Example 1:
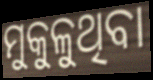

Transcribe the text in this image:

ମୁକୁଳୁଥିବା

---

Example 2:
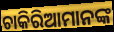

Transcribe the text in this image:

ଚାକିରିଆମାନଙ୍କ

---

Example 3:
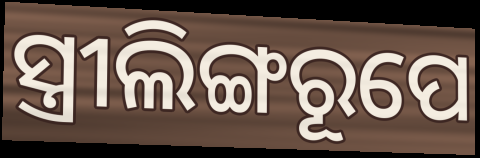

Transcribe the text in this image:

ସ୍ତ୍ରୀଲିଙ୍ଗରୂପେ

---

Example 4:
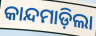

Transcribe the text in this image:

କାନ୍ଦମାଡ଼ିଲା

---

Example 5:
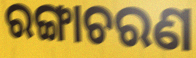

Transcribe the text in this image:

ରଙ୍ଗାଚରଣ